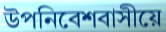
উপনিবেশবাসীয়ে